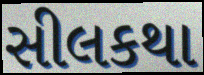
સીલકથા